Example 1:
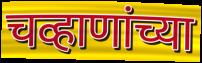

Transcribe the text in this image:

चव्हाणांच्या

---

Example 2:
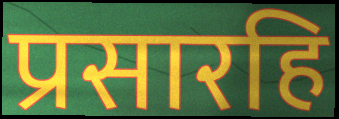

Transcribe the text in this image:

प्रसारहि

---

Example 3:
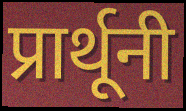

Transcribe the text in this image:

प्रार्थूनी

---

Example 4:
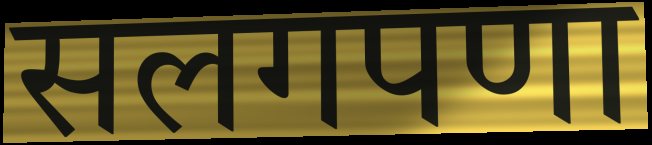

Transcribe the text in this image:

सलगपणा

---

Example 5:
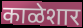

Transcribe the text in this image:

काळेशार